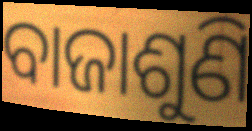
ବାଜାଶୁଣି